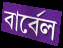
বার্বেল